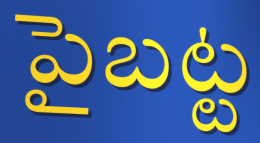
పైబట్ట